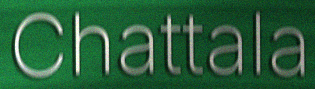
Chattala